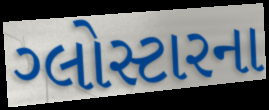
ગ્લોસ્ટારના